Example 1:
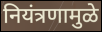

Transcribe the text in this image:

नियंत्रणामुळे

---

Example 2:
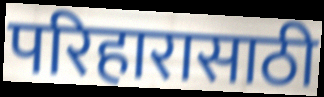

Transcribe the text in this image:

परिहारासाठी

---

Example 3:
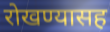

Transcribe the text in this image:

रोखण्यासह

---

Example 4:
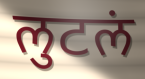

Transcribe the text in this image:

लुटलं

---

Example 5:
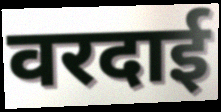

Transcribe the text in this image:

वरदाई